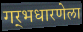
गर्भधारणेला